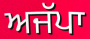
ਅਜੱਪਾ